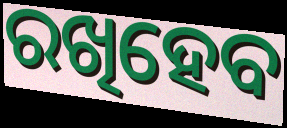
ରଖିହେବ